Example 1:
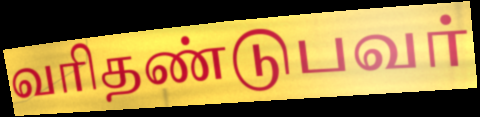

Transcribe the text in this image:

வரிதண்டுபவர்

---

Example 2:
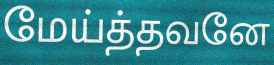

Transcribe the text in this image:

மேய்த்தவனே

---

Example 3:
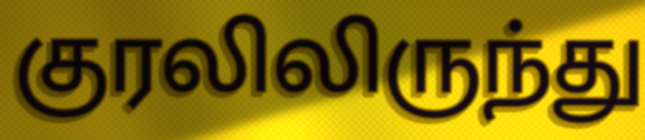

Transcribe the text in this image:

குரலிலிருந்து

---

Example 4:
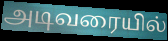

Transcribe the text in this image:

அடிவரையில்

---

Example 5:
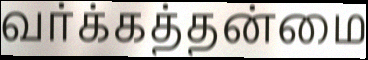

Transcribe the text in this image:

வர்க்கத்தன்மை